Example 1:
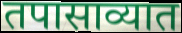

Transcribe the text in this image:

तपासाव्यात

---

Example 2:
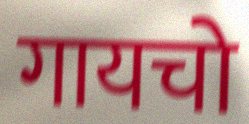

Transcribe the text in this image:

गायचो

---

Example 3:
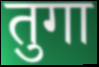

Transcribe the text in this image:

तुगा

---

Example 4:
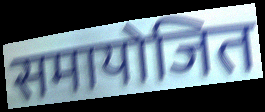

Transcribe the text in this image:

समायोजित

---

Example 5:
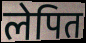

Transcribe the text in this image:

लेपित